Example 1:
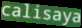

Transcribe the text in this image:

calisaya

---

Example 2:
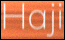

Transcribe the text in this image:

Haji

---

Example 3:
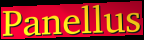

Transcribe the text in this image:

Panellus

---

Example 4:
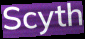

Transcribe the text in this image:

Scyth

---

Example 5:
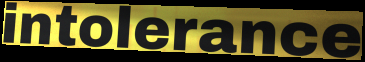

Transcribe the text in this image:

intolerance